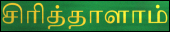
சிரித்தாளாம்